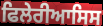
ਫਿਲੇਰੀਆਸਿਸ